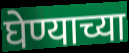
घेण्याच्या